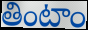
తింటాం